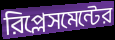
রিপ্লেসমেন্টের